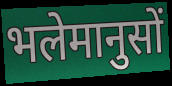
भलेमानुसों